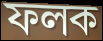
ফলক